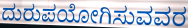
ದುರುಪಯೋಗಿಸುವವರ